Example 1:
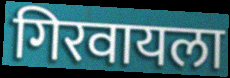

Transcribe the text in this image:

गिरवायला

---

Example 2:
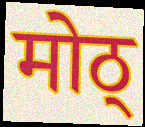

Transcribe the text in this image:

मोठ्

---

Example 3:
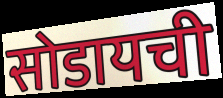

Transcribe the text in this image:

सोडायची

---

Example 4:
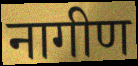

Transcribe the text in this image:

नागीण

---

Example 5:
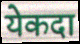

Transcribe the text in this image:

येकदा